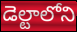
డెల్టాలోని